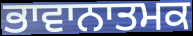
ਭਾਵਾਨਾਤਮਕ